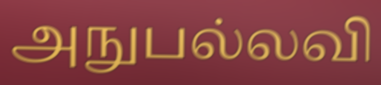
அநுபல்லவி